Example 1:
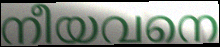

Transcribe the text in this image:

നീയവനെ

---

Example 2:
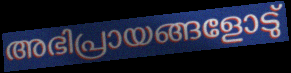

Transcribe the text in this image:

അഭിപ്രായങ്ങളോടു്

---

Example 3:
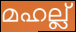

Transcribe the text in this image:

മഹല്ല്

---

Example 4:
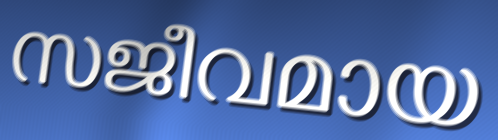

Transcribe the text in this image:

സജീവമായ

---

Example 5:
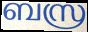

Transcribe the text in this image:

ബസ്ര